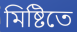
মিষ্টিতে